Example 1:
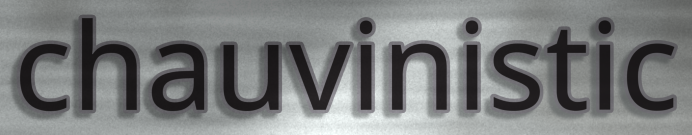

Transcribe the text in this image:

chauvinistic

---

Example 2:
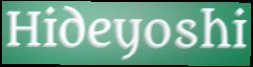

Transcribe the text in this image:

Hideyoshi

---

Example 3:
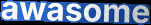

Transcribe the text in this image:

awasome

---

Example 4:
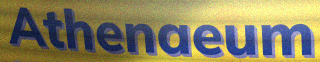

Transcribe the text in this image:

Athenaeum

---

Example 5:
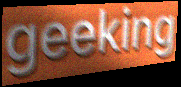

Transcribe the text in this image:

geeking